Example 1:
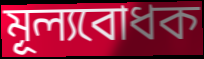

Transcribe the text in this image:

মূল্যবোধক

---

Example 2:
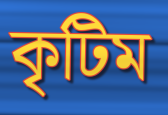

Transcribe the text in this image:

কৃটিম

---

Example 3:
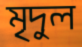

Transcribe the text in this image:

মৃদুল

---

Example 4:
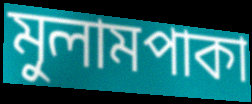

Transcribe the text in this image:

মুলামপাকা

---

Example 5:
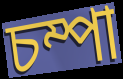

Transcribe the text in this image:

চম্পা